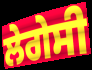
ਲੇਗੇਸੀ